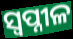
ସ୍ୱପ୍ନୀଳ